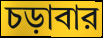
চড়াবার